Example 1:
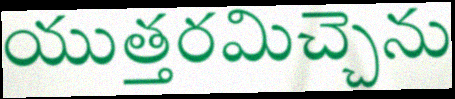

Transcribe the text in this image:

యుత్తరమిచ్చెను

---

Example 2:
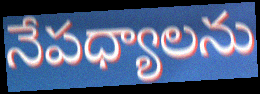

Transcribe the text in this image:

నేపధ్యాలను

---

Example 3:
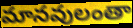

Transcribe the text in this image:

మానవులంతా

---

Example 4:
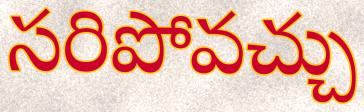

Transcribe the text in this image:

సరిపోవచ్చు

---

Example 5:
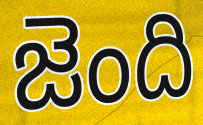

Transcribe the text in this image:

జెంది